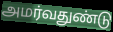
அமர்வதுண்டு